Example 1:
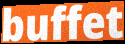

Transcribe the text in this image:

buffet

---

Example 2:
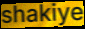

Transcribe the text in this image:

shakiye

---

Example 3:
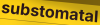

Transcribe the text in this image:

substomatal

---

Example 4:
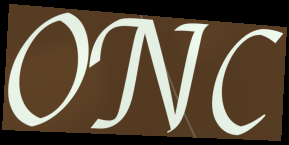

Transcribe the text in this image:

ONC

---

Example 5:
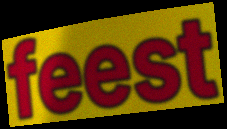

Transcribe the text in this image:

feest